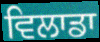
ਵਿਲਾਡਾ